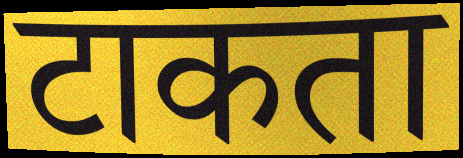
टाकता